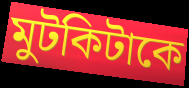
মুটকিটাকে